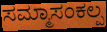
ಸಮ್ಮಾಸಂಕಲ್ಪ